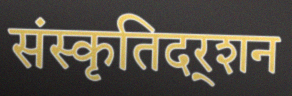
संस्कृतिदर्शन